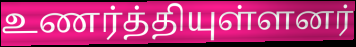
உணர்த்தியுள்ளனர்